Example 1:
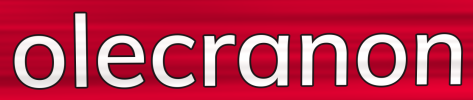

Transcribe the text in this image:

olecranon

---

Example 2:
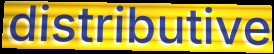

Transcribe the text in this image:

distributive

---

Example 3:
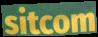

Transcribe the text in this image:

sitcom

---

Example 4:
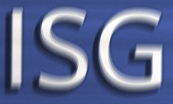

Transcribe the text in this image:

ISG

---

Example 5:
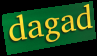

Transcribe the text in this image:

dagad